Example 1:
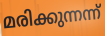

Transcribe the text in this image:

മരിക്കുന്നന്ന്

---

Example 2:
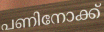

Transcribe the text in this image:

പണിനോക്ക്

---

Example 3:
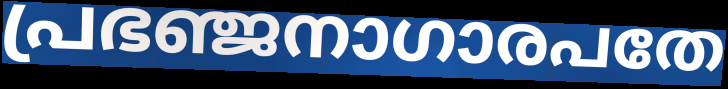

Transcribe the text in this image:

പ്രഭഞ്ജനാഗാരപതേ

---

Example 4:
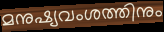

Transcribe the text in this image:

മനുഷ്യവംശത്തിനും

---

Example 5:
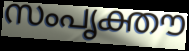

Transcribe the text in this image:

സംപൃക്തൗ